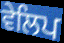
ਵੇਲਿਪ